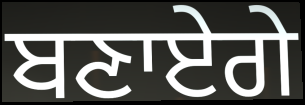
ਬਣਾਏਗੇ